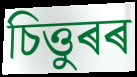
চিত্তুৰৰ